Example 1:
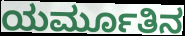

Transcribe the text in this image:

ಯರ್ಮೂತಿನ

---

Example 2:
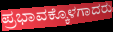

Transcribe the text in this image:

ಪ್ರಭಾವಕ್ಕೊಳಗಾದರು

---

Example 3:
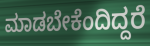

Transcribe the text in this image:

ಮಾಡಬೇಕೆಂದಿದ್ದರೆ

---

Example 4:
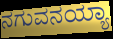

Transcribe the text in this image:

ನಗುವನಯ್ಯಾ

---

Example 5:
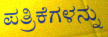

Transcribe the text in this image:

ಪತ್ರಿಕೆಗಳನ್ನು